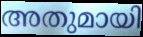
അതുമായി